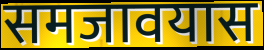
समजावयास